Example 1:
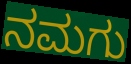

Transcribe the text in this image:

ನಮಗು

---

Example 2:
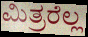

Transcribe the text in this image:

ಮಿತ್ರರೆಲ್ಲ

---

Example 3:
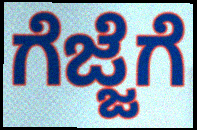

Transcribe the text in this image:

ಗೆಜ್ಜೆಗೆ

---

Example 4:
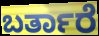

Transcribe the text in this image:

ಬರ್ತಾರೆ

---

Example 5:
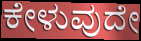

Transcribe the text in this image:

ಕೇಳುವುದೇ